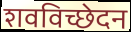
शवविच्छेदन